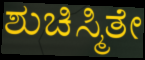
ಶುಚಿಸ್ಮಿತೇ